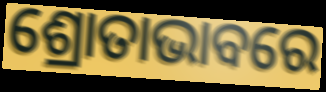
ଶ୍ରୋତାଭାବରେ